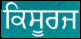
ਕਿਸੂਰਜ